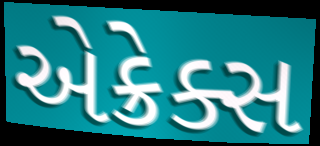
એક્રેક્સ